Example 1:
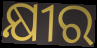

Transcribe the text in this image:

କ୍ଷୀର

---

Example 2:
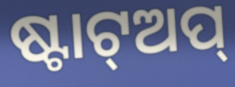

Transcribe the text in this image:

ଷ୍ଟାଟ୍ଅପ୍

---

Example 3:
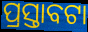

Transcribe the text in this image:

ପ୍ରସ୍ତାବଟା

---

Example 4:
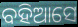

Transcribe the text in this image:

ବହିଆସେ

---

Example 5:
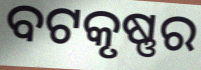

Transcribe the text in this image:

ବଟକୃଷ୍ଣର